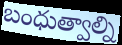
బంధుత్వాల్ని